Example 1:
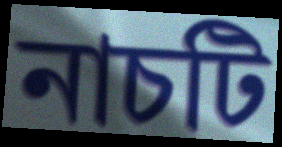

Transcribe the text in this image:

নাচটি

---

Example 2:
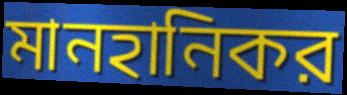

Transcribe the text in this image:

মানহানিকর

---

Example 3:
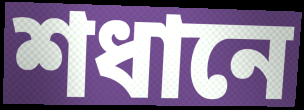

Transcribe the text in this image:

শধানে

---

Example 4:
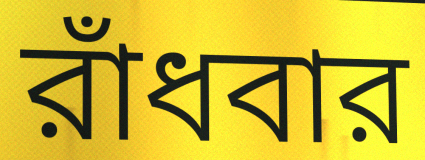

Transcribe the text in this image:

রাঁধবার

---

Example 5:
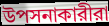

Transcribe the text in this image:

উপসনাকারীরা